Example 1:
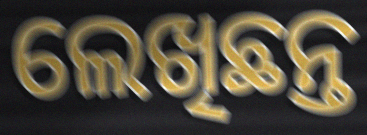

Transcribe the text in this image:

ଲେଖିଛନ୍ତ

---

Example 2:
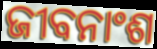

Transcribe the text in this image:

ଜୀବନାଂଶ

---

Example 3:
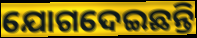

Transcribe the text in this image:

ଯୋଗଦେଇଛନ୍ତି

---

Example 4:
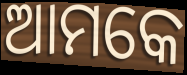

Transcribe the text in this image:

ଆମକେ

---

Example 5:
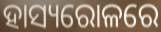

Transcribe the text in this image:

ହାସ୍ୟରୋଳରେ